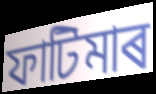
ফাটিমাৰ